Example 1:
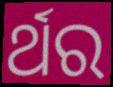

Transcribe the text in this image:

ର୍ଥର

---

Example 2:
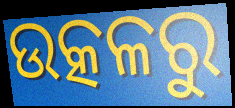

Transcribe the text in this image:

ଉତ୍କଳରୁ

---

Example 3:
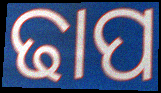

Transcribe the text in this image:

ଢାପ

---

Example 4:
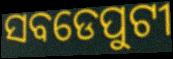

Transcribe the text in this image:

ସବଡେପୁଟୀ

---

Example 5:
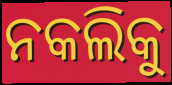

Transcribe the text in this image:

ନକଲିକୁ